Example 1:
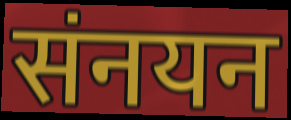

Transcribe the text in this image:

संनयन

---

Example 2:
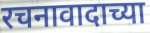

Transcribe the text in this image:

रचनावादाच्या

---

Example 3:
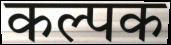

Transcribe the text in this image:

कल्पक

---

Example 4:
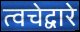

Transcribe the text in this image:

त्वचेद्वारे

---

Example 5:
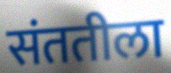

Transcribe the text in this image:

संततीला